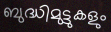
ബുദ്ധിമുട്ടുകളും